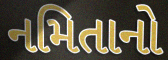
નમિતાનો